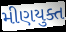
મીણયુક્ત